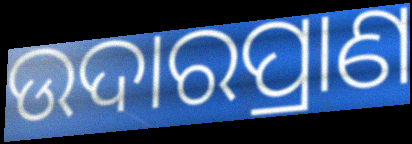
ଉଦାରପ୍ରାଣ